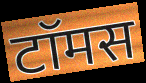
टॉमस